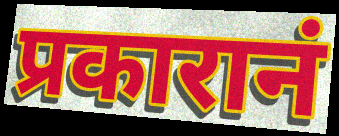
प्रकारानं